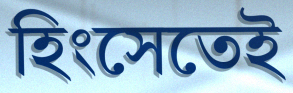
হিংসেতেই